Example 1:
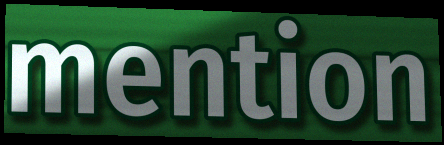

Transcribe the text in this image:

mention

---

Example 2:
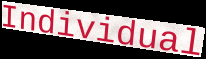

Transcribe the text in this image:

Individual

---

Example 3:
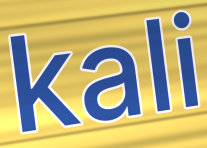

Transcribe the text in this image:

kali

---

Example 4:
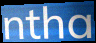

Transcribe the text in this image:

ntha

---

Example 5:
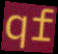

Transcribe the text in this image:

qf